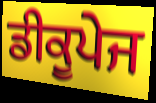
ਡੀਕੂਪੇਜ